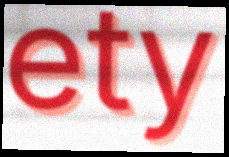
ety